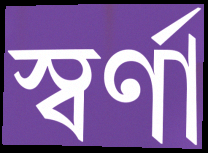
স্বর্ণা